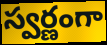
స్వర్ణంగా